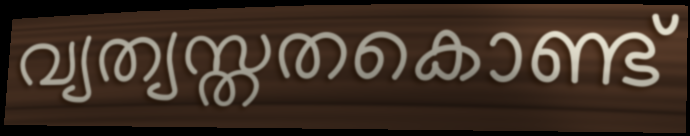
വ്യത്യസ്തതകൊണ്ട്